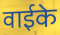
वाईके